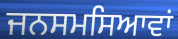
ਜਨਸਮਸਿਆਵਾਂ